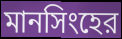
মানসিংহের